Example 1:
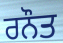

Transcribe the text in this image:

ਰਨੌਤ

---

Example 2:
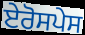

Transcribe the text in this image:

ਏਰੋਸਪੇਸ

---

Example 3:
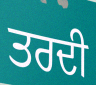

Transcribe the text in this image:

ਤਰਦੀ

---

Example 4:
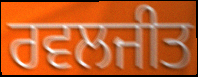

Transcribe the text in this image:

ਰਵਲਜੀਤ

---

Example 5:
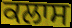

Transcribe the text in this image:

ਕਲਾਸ